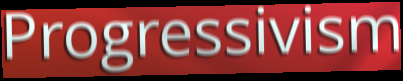
Progressivism